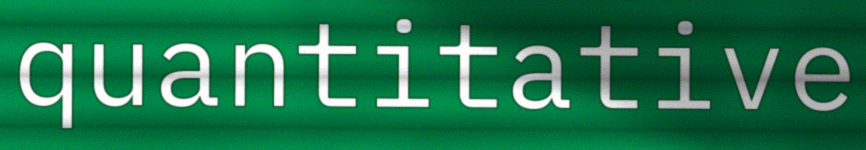
quantitative